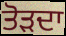
ਤੋੜਦਾ